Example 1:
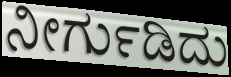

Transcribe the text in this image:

ನೀರ್ಗುಡಿದು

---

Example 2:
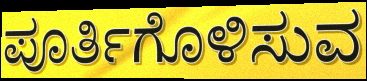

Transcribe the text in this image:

ಪೂರ್ತಿಗೊಳಿಸುವ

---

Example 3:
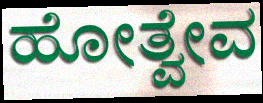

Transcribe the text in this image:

ಹೋತ್ವೇವ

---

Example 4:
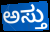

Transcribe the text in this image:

ಅಸ್ತು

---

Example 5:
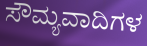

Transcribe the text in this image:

ಸೌಮ್ಯವಾದಿಗಳ